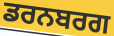
ਡਰਨਬਰਗ